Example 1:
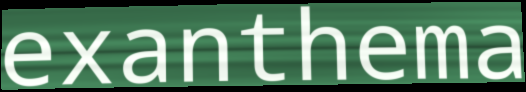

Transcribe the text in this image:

exanthema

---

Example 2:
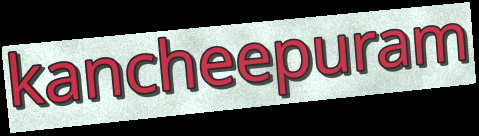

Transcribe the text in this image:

kancheepuram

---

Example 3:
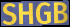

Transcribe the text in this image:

SHGB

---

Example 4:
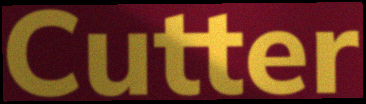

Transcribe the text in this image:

Cutter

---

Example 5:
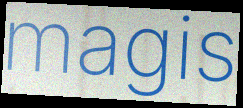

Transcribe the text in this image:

magis